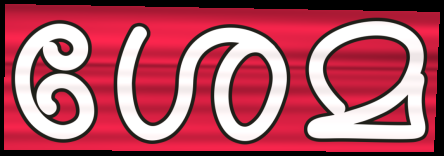
ശേമ